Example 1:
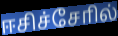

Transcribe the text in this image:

ஈசிச்சேரில்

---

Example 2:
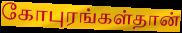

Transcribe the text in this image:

கோபுரங்கள்தான்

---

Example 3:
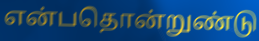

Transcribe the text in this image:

என்பதொன்றுண்டு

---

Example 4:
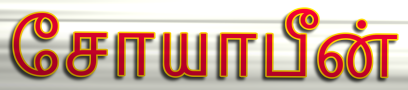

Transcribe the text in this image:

சோயாபீன்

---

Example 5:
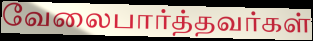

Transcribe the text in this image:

வேலைபார்த்தவர்கள்